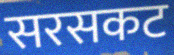
सरसकट